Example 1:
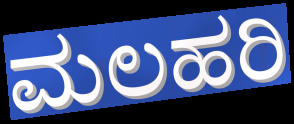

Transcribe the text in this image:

ಮಲಹರಿ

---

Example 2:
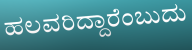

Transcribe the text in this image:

ಹಲವರಿದ್ದಾರೆಂಬುದು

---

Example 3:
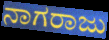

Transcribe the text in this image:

ನಾಗರಾಜು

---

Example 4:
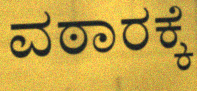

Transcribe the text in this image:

ವಠಾರಕ್ಕೆ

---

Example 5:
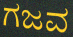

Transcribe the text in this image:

ಗಜವ